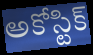
అకోస్టిక్